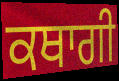
ਕਥਾਗੀ